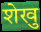
शेखु